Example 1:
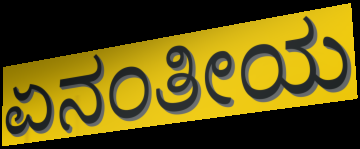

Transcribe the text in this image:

ಏನಂತೀಯ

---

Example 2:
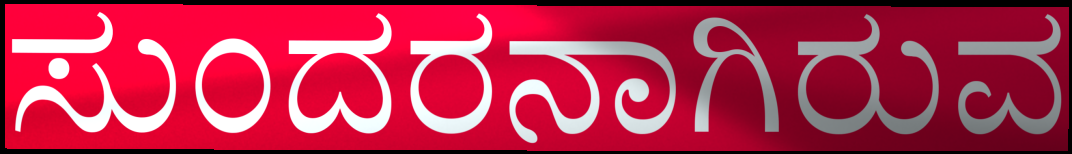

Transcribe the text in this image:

ಸುಂದರನಾಗಿರುವ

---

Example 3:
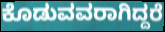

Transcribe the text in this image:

ಕೊಡುವವರಾಗಿದ್ದರೆ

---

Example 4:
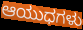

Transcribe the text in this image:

ಆಯುಧಗಳು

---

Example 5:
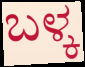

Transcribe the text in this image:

ಬಳ್ಕ